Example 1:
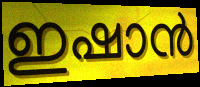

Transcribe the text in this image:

ഇഷാൻ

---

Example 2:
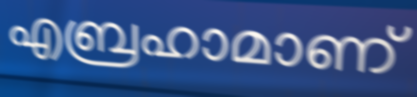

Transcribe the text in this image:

എബ്രഹാമാണ്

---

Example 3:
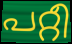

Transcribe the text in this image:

പറ്റീ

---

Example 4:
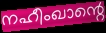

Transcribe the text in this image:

നഹീംഖാന്റെ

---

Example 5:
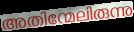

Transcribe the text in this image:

അതിന്മേലിരുന്നു